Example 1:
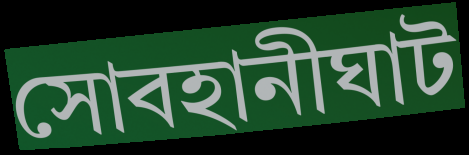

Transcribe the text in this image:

সোবহানীঘাট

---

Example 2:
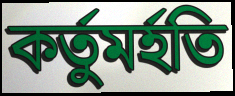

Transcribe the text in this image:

কর্তুমর্হতি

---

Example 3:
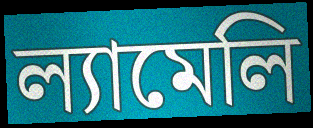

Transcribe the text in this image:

ল্যামেলি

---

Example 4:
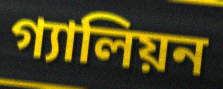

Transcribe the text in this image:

গ্যালিয়ন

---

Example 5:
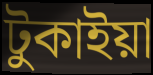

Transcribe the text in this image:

টুকাইয়া